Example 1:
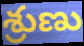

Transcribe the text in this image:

శ్రుణు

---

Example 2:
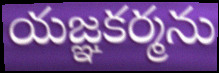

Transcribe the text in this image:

యజ్ఞకర్మను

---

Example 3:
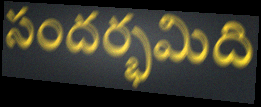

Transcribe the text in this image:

సందర్భమిది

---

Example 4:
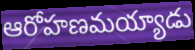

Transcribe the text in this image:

ఆరోహణమయ్యాడు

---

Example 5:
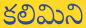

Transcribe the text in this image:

కలిమిని